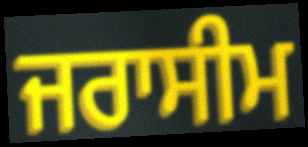
ਜਰਾਸੀਮ